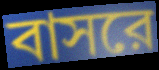
বাসরে